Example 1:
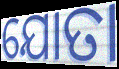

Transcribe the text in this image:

ଯୋତା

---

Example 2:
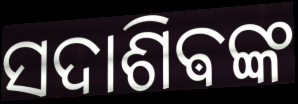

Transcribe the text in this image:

ସଦାଶିଵଙ୍କ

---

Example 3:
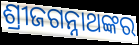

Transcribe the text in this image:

ଶ୍ରୀଜଗନ୍ନାଥଙ୍କର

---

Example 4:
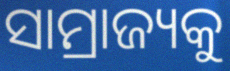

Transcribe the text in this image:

ସାମ୍ରାଜ୍ୟକୁ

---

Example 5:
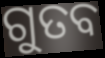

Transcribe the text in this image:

ଗୁତବ